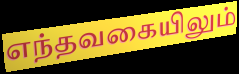
எந்தவகையிலும்